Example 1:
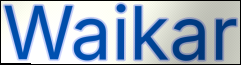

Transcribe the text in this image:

Waikar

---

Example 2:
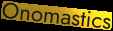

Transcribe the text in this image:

Onomastics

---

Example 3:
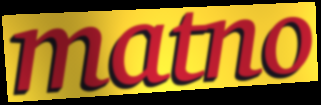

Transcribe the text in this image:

matno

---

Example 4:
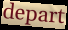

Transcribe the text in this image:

depart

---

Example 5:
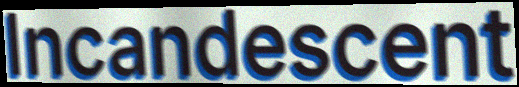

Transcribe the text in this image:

Incandescent